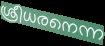
ശ്രീധരനെന്ന